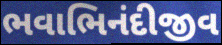
ભવાભિનંદીજીવ